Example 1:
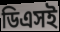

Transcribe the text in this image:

ডিএসই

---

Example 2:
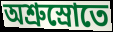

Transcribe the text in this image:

অশ্রুস্রোতে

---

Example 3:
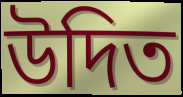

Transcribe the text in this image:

উদিত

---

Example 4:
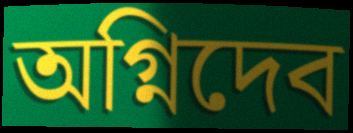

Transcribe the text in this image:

অগ্নিদেব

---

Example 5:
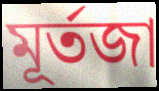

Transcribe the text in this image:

মূর্তজা